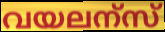
വയലന്സ്